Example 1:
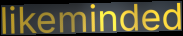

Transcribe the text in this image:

likeminded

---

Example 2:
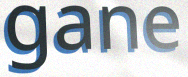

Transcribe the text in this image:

gane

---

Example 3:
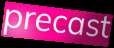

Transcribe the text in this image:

precast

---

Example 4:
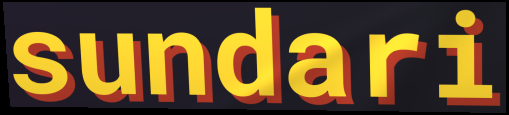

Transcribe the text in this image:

sundari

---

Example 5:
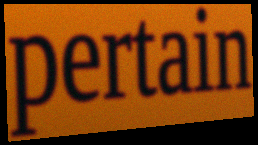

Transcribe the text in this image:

pertain